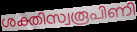
ശക്തിസ്വരൂപിണി